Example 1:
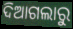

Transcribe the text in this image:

ଦିଆଗଲାରୁ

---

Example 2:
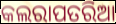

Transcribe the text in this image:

କଲରାପତରିଆ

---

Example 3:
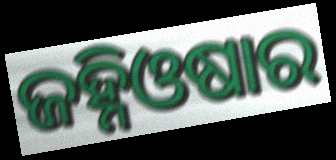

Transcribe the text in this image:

ଜହ୍ନିଓଷାର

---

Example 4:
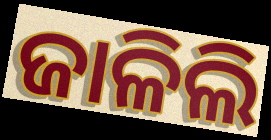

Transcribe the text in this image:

ଜାଳିଲି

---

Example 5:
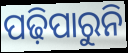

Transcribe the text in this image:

ପଢ଼ିପାରୁନି